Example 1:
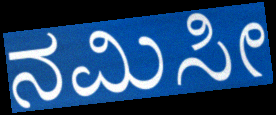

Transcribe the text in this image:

ನಮಿಸೀ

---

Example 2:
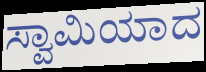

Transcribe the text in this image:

ಸ್ವಾಮಿಯಾದ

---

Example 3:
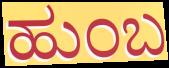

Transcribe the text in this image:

ಹುಂಬ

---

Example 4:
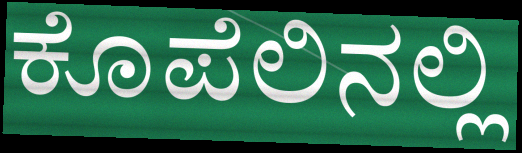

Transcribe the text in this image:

ಕೊಪೆಲಿನಲ್ಲಿ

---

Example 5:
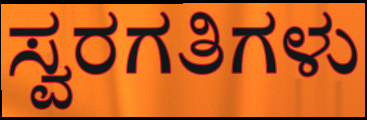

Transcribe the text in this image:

ಸ್ವರಗತಿಗಳು